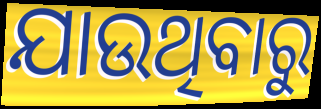
ଯାଉଥିବାରୁ